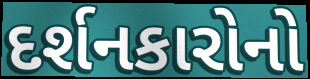
દર્શનકારોનો